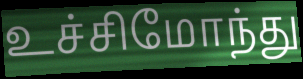
உச்சிமோந்து